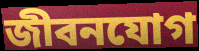
জীবনযোগ